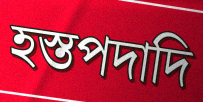
হস্তপদাদি